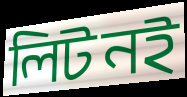
লিটনই